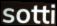
sotti